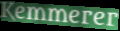
Kemmerer